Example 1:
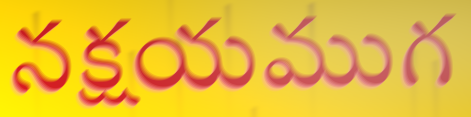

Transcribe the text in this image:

నక్షయముగ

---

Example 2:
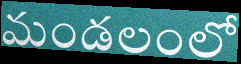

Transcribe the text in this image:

మండలంలో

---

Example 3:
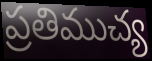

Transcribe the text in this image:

ప్రతిముచ్య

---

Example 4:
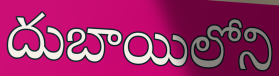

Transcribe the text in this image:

దుబాయిలోని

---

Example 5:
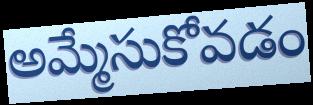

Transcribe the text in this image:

అమ్మేసుకోవడం